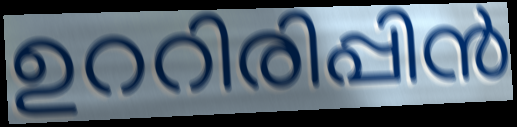
ഉററിരിപ്പിൻ